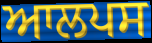
ਆਲਪਸ